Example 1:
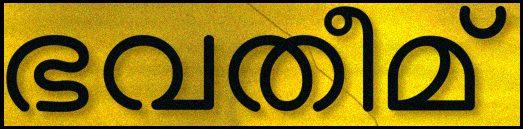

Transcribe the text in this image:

ഭവതീമ്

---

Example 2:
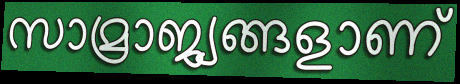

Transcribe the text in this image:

സാമ്രാജ്യങ്ങളാണ്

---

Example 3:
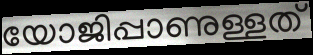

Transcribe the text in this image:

യോജിപ്പാണുള്ളത്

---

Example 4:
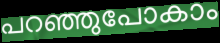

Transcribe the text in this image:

പറഞ്ഞുപോകാം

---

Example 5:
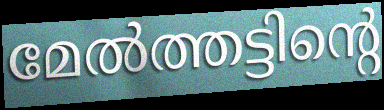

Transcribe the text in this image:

മേൽത്തട്ടിന്റെ